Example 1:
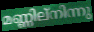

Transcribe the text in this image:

മണ്ണില്നിന്നു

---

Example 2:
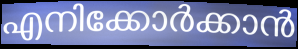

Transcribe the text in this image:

എനിക്കോർക്കാൻ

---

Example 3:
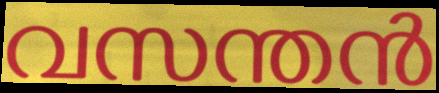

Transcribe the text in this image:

വസന്തൻ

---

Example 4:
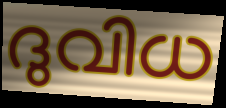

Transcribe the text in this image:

ദുവിധ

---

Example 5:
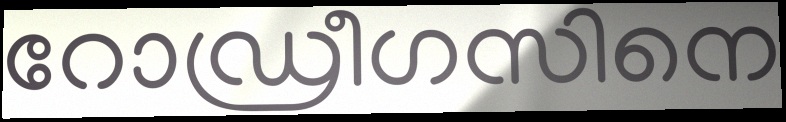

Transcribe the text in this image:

റോഡ്രീഗസിനെ